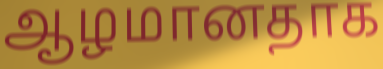
ஆழமானதாக